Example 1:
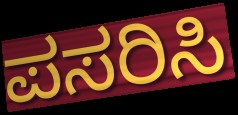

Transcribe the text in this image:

ಪಸರಿಸಿ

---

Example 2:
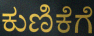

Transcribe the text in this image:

ಕುಣಿಕೆಗೆ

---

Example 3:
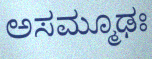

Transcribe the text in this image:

ಅಸಮ್ಮೂಢಃ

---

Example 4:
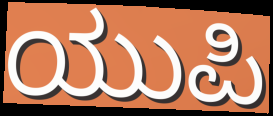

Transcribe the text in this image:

ಯುಪಿ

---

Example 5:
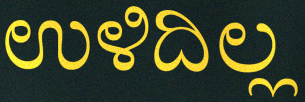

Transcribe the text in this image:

ಉಳಿದಿಲ್ಲ